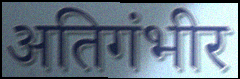
अतिगंभीर